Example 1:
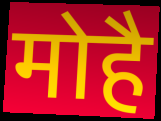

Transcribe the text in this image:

मोहै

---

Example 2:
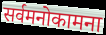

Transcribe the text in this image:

सर्वमनोकामना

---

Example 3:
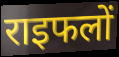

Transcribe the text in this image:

राइफलों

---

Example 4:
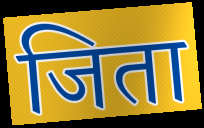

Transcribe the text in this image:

जिता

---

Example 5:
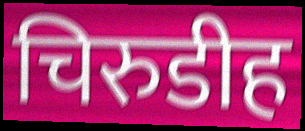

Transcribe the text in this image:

चिरुडीह